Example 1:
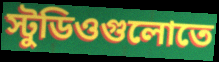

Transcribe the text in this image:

স্টুডিওগুলোতে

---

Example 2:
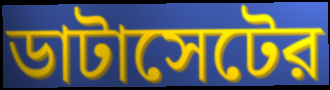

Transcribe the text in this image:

ডাটাসেটের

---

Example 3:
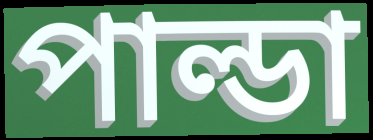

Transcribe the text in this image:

পাল্ডা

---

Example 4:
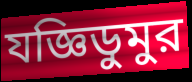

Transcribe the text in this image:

যজ্ঞিডুমুর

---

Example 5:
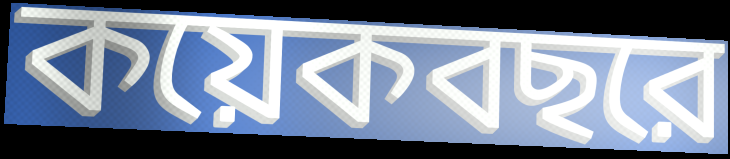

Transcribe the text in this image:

কয়েকবছরে